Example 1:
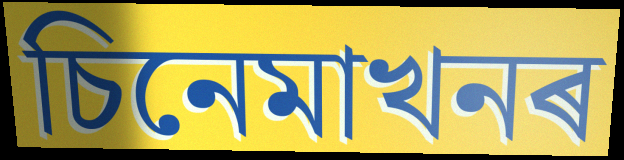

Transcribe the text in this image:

চিনেমাখনৰ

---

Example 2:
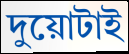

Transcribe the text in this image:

দুয়োটাই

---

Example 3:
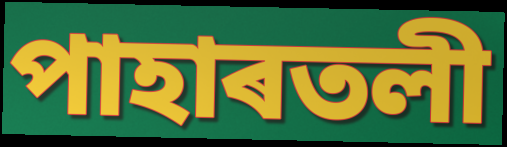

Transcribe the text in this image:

পাহাৰতলী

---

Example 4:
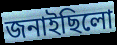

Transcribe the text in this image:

জনাইছিলো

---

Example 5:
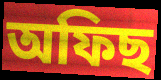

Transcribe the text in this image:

অফিছ